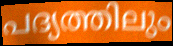
പദ്യത്തിലും